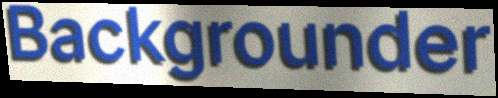
Backgrounder